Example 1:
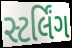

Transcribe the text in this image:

સ્ટર્લિંગ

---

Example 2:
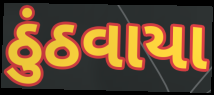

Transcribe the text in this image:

ઠુંઠવાયા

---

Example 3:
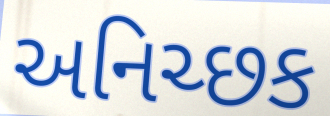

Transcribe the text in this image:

અનિચ્છક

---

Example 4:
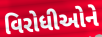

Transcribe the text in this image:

વિરોધીઓને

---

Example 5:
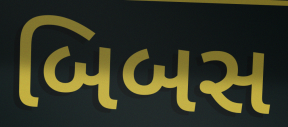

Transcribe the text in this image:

બિબસ